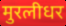
मुरलीधर